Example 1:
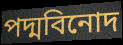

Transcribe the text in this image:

পদ্মবিনোদ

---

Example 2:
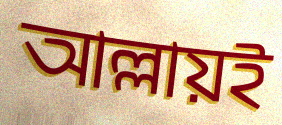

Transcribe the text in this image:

আল্লায়ই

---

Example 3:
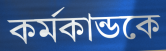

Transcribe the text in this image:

কর্মকান্ডকে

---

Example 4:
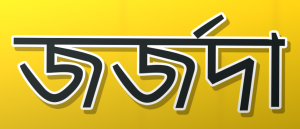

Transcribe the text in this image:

জর্জদা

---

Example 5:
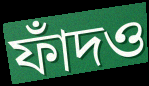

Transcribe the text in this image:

ফাঁদও